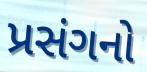
પ્રસંગનો